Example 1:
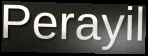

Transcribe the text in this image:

Perayil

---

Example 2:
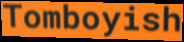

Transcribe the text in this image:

Tomboyish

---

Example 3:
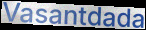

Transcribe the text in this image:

Vasantdada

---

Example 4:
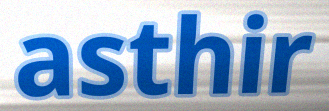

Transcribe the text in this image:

asthir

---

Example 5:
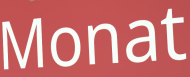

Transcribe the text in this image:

Monat